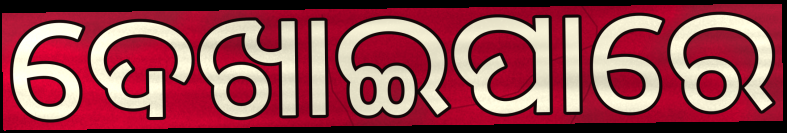
ଦେଖାଇପାରେ